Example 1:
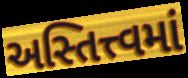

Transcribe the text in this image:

અસ્તિત્ત્વમાં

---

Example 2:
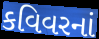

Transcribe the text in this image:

કવિવરનાં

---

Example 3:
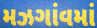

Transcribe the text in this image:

મઝગાંવમાં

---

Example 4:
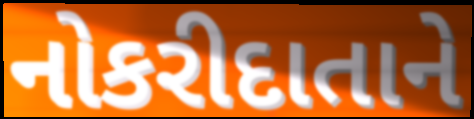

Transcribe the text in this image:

નોકરીદાતાને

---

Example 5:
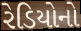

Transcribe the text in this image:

રેડિયોનો